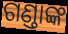
ଗଣ୍ଡାଙ୍କ